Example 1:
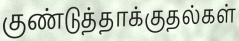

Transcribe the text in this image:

குண்டுத்தாக்குதல்கள்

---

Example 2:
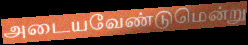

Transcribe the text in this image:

அடையவேண்டுமென்று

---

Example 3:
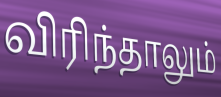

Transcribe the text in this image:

விரிந்தாலும்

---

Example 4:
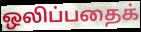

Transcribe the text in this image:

ஒலிப்பதைக்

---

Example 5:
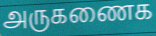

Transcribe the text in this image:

அருகணைக